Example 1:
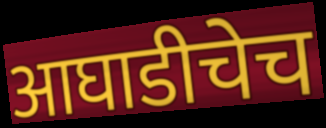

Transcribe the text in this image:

आघाडीचेच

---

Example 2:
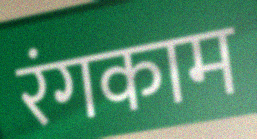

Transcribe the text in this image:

रंगकाम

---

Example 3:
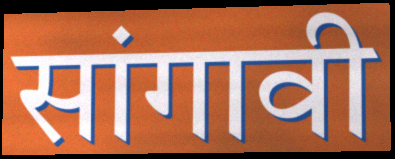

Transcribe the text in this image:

सांगावी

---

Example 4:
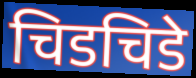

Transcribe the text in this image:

चिडचिडे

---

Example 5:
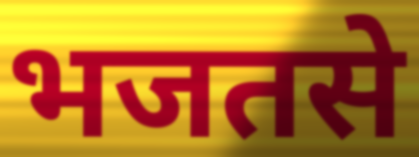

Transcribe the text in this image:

भजतसे